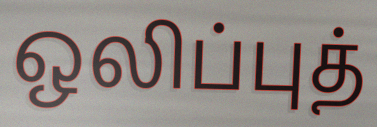
ஒலிப்புத்